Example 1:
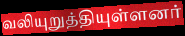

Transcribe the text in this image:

வலியுறுத்தியுள்ளனர்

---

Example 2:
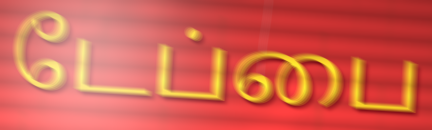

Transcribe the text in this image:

டேப்பை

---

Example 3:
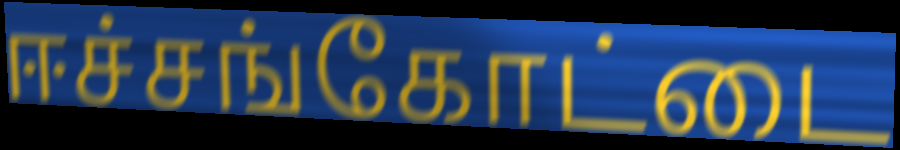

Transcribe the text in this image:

ஈச்சங்கோட்டை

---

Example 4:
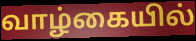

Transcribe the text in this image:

வாழ்கையில்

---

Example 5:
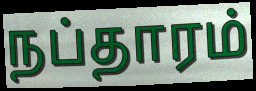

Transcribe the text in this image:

நப்தாரம்